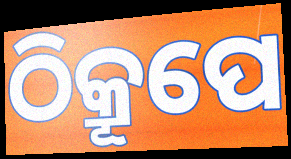
ଠିକ୍ରୂପେ